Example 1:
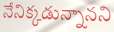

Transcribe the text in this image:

నేనిక్కడున్నానని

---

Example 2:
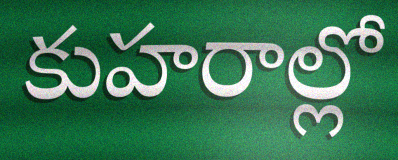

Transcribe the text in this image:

కుహరాల్లో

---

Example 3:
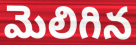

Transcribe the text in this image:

మెలిగిన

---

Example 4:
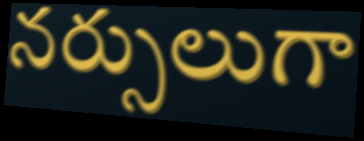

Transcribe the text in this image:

నర్సులుగా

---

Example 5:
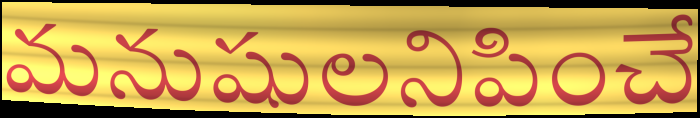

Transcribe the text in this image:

మనుషులనిపించే